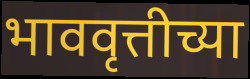
भाववृत्तीच्या